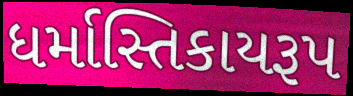
ધર્માસ્તિકાયરૂપ